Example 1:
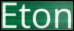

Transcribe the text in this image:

Eton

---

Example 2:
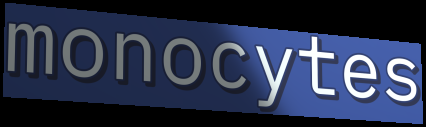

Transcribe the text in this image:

monocytes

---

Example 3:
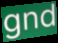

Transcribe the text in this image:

gnd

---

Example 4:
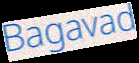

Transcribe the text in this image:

Bagavad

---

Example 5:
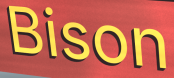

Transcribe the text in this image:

Bison